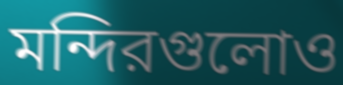
মন্দিরগুলোও